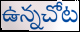
ఉన్నచోట